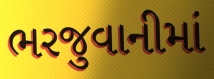
ભરજુવાનીમાં